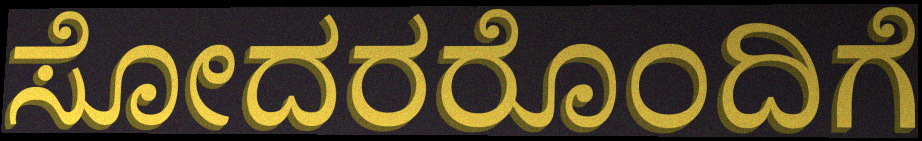
ಸೋದರರೊಂದಿಗೆ